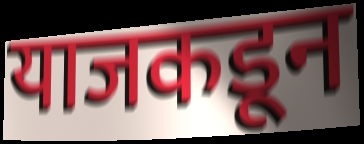
याजकडून